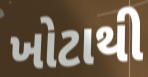
ખોટાથી